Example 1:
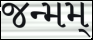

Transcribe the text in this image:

જન્મમ્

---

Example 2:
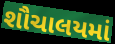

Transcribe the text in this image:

શૌચાલયમાં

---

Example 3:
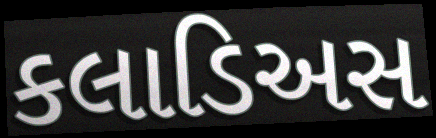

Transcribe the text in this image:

કલાડિઅસ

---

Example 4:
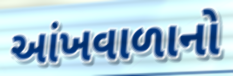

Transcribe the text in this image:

આંખવાળાનો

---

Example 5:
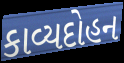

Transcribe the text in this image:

કાવ્યદોહન